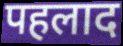
पहलाद